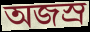
অজস্ৰ